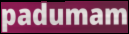
padumam